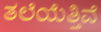
ತಲೆಯೆತ್ತಿವೆ